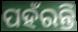
ପହଁରନ୍ତି